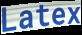
Latex